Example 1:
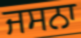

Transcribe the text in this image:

ਜਸਨਾ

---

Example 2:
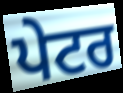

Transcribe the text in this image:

ਪੇਟਰ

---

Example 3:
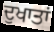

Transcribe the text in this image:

ਦੁਖਾਤਾਂ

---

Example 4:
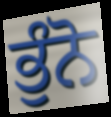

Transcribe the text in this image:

ਭੁੰਨੋ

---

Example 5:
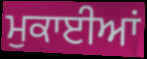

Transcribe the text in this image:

ਮੁਕਾਈਆਂ